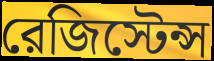
রেজিস্টেন্স